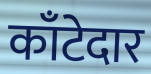
काँटेदार